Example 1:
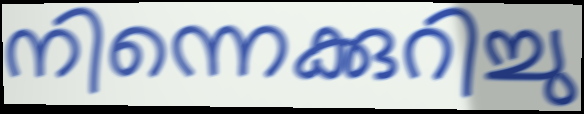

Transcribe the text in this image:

നിന്നെക്കുറിച്ചു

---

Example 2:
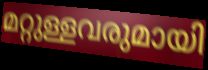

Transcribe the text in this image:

മറ്റുള്ളവരുമായി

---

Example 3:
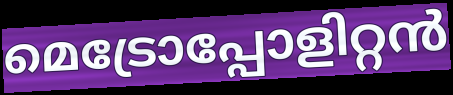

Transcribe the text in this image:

മെട്രോപ്പോളിറ്റൻ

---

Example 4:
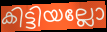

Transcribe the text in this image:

കിട്ടിയല്ലോ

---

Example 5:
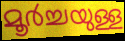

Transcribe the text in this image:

മൂർച്ചയുള്ള